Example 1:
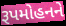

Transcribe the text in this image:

રૂપમોહનને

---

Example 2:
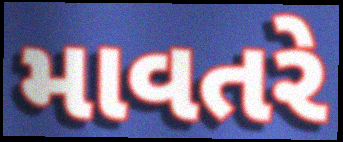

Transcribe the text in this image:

માવતરે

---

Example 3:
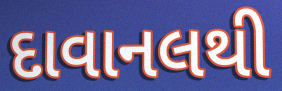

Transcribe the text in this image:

દાવાનલથી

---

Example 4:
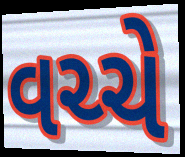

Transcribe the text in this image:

વચ્ચે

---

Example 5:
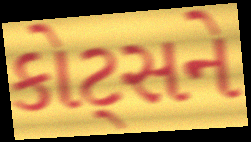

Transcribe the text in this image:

કોટ્સને